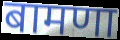
बामणा